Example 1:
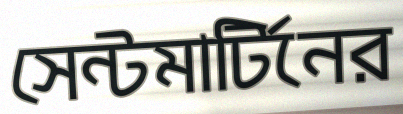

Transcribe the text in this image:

সেন্টমার্টিনের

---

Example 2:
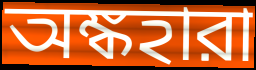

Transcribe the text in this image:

অঙ্কহারা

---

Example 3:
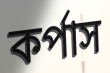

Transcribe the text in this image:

কর্পাস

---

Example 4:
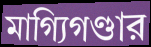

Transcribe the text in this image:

মাগ্যিগণ্ডার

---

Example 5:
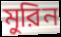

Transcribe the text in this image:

মুরিন